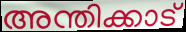
അന്തിക്കാട്